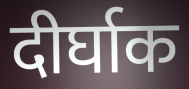
दीर्घाक